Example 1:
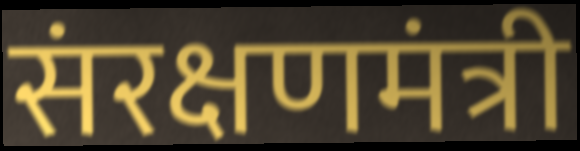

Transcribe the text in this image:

संरक्षणमंत्री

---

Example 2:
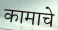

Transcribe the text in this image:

कामाचे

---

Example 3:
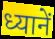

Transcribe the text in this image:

ध्यानें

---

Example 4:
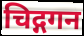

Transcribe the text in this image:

चिद्गगन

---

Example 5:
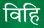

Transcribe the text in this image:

विहि